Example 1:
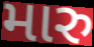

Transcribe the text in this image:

મારુ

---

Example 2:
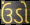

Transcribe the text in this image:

ઉંડો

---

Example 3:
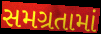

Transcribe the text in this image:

સમગ્રતામાં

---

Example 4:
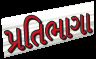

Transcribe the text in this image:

પ્રતિભાગા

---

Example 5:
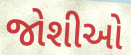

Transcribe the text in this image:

જોશીઓ